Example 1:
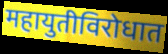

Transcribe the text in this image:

महायुतीविरोधात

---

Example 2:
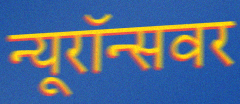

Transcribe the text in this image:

न्यूरॉन्सवर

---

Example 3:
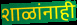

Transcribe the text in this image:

शाळांनाही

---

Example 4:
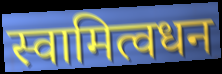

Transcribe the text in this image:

स्वामित्वधन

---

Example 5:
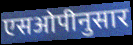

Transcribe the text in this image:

एसओपीनुसार